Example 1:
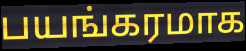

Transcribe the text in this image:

பயங்கரமாக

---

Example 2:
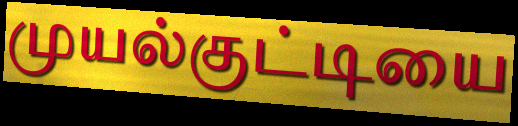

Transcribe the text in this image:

முயல்குட்டியை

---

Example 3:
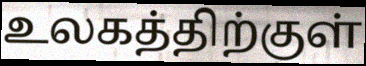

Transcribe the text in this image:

உலகத்திற்குள்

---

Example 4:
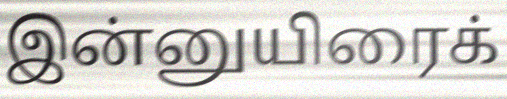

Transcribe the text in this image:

இன்னுயிரைக்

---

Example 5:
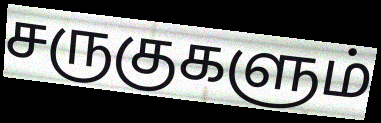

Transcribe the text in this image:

சருகுகளும்